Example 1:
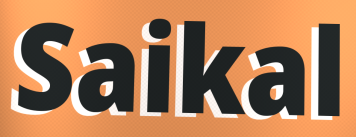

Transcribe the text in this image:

Saikal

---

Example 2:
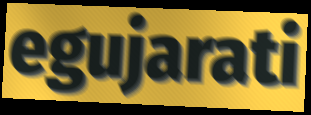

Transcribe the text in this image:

egujarati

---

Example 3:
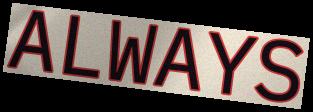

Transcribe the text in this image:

ALWAYS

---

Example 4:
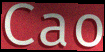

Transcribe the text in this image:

Cao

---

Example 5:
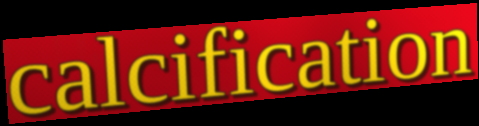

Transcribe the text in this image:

calcification